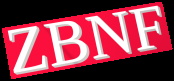
ZBNF